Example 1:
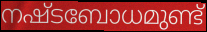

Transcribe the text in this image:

നഷ്ടബോധമുണ്ട്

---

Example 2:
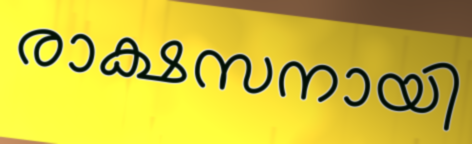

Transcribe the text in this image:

രാക്ഷസനായി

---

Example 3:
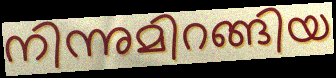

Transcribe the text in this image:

നിന്നുമിറങ്ങിയ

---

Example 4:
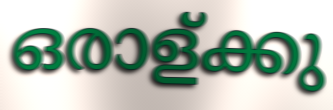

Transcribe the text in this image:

ഒരാള്ക്കു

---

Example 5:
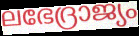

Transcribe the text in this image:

ലഭേദ്രാജ്യം